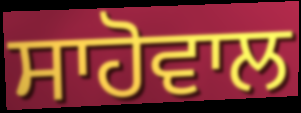
ਸਾਹੋਵਾਲ